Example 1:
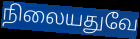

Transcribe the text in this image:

நிலையதுவே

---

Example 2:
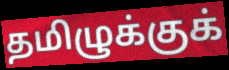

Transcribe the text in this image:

தமிழுக்குக்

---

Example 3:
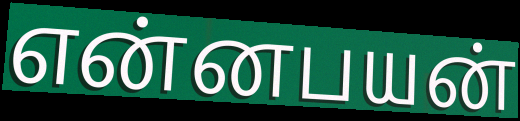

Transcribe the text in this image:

என்னபயன்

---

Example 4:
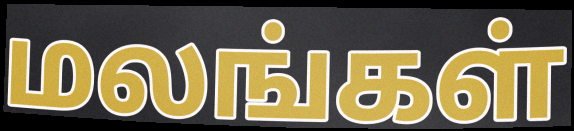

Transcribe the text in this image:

மலங்கள்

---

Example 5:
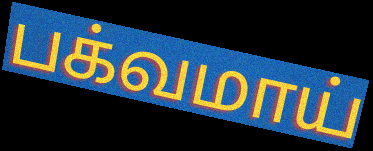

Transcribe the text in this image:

பக்வமாய்